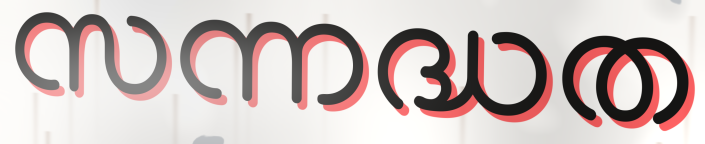
സന്നദ്ധത